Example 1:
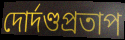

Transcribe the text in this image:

দোর্দণ্ডপ্রতাপ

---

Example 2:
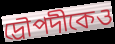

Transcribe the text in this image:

দ্রৌপদীকেও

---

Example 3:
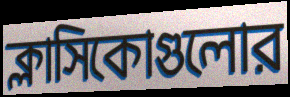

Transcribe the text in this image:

ক্লাসিকোগুলোর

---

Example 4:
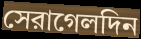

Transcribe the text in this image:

সেরাগেলদিন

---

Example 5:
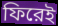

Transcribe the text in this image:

ফিরেই